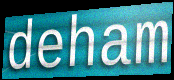
deham